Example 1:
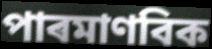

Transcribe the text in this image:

পাৰমাণবিক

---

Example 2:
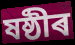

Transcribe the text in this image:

ষষ্ঠীৰ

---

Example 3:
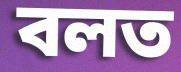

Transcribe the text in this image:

বলত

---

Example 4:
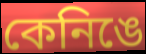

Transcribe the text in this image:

কেনিঙে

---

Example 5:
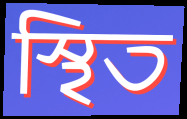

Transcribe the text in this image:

স্থিত